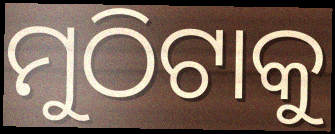
ମୁଠିଟାକୁ